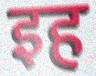
इह